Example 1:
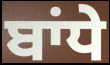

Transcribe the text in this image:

ਬਾਂਧੇ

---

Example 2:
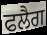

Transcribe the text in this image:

ਫਲੈਗ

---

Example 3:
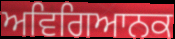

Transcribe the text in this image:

ਅਵਿਗਿਆਨਕ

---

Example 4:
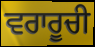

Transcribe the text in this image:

ਵਰਾਰੂਚੀ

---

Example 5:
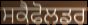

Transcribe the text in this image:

ਸਕੈਫੋਲਡਰ